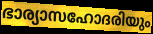
ഭാര്യാസഹോദരിയും